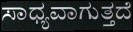
ಸಾಧ್ಯವಾಗುತ್ತದೆ